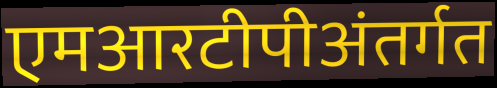
एमआरटीपीअंतर्गत